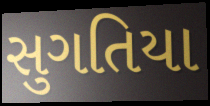
સુગતિયા